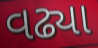
વઢ્યા